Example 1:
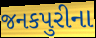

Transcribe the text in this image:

જનકપુરીના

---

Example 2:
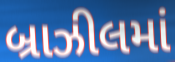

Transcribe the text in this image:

બ્રાઝીલમાં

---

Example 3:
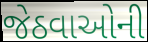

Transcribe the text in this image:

જેઠવાઓની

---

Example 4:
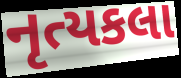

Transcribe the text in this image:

નૃત્યકલા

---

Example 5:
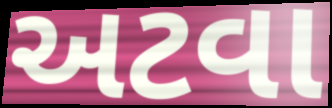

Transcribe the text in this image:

અટવા